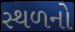
સ્થળનો